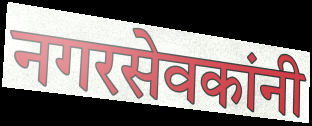
नगरसेवकांनी